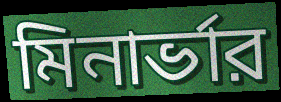
মিনার্ভার